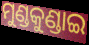
ମୁଣ୍ଡକୁଣ୍ଡାଇ